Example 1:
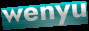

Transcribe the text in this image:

wenyu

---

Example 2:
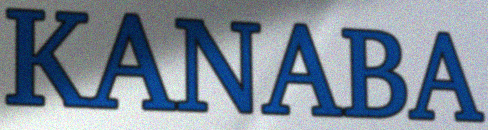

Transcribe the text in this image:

KANABA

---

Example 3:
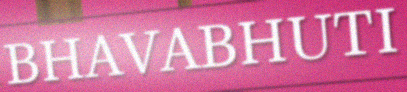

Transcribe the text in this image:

BHAVABHUTI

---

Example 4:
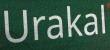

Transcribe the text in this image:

Urakal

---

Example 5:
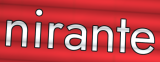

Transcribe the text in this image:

nirante